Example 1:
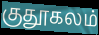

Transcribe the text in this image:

குதூகலம்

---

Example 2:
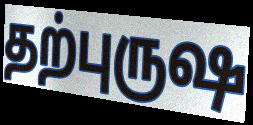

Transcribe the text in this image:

தற்புருஷ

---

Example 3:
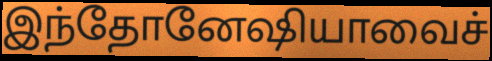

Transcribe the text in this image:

இந்தோனேஷியாவைச்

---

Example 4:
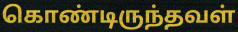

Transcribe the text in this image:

கொண்டிருந்தவள்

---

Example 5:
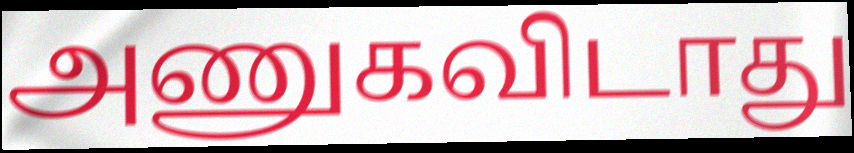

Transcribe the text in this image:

அணுகவிடாது